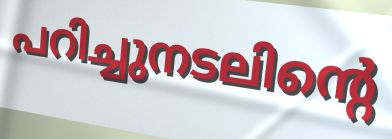
പറിച്ചുനടലിന്റെ